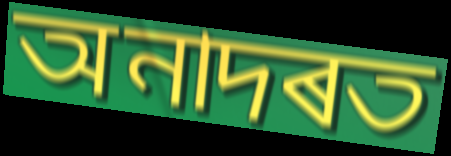
অনাদৰত